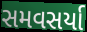
સમવસર્યા